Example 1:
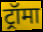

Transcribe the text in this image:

ट्रॉमा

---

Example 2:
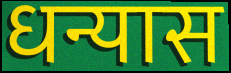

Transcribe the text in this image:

धन्यास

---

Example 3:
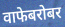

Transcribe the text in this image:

वाफेबरोबर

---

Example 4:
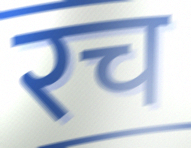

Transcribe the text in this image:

रच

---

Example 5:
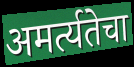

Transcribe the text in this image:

अमर्त्यतेचा